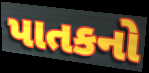
પાતકનો